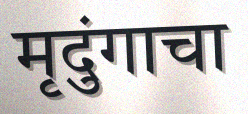
मृदुंगाचा